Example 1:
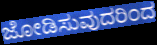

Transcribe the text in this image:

ಜೋಡಿಸುವುದರಿಂದ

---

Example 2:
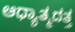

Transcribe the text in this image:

ಆಧ್ಯಾತ್ಮದತ್ತ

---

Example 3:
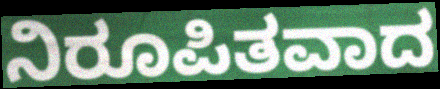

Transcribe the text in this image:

ನಿರೂಪಿತವಾದ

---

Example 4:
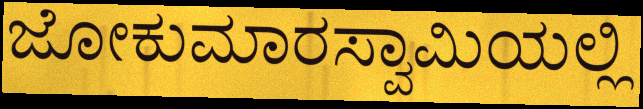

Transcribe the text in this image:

ಜೋಕುಮಾರಸ್ವಾಮಿಯಲ್ಲಿ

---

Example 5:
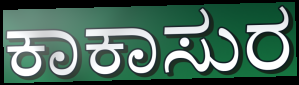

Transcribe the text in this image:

ಕಾಕಾಸುರ